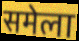
समेला